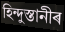
হিন্দুস্তানীৰ